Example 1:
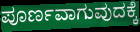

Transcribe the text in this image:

ಪೂರ್ಣವಾಗುವುದಕ್ಕೆ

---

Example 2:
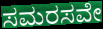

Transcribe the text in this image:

ಸಮರಸವೇ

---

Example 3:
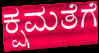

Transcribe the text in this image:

ಕ್ಷಮತೆಗೆ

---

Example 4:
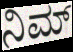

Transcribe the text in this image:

ನಿಮ್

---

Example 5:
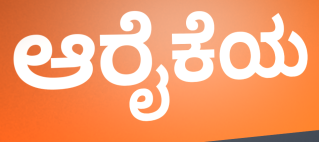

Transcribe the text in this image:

ಆರೈಕೆಯ